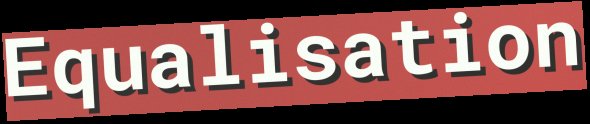
Equalisation